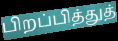
பிறப்பித்துத்